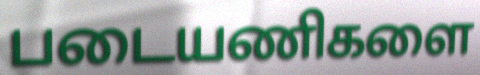
படையணிகளை